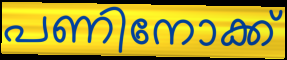
പണിനോക്ക്